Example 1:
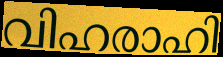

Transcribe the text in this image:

വിഹരാഹി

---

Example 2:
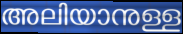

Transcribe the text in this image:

അലിയാനുള്ള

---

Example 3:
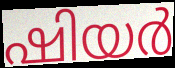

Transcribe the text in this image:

ഷിയർ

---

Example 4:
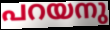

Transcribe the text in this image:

പറയനു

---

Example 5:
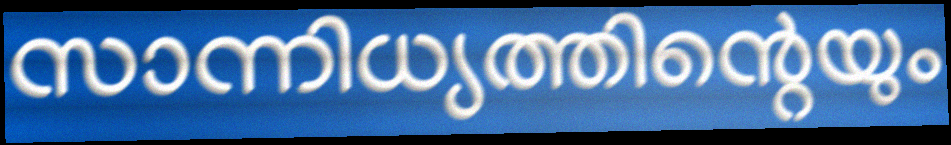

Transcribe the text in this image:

സാന്നിധ്യത്തിന്റെയും